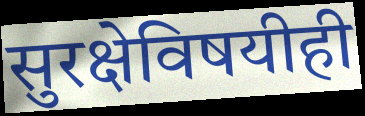
सुरक्षेविषयीही